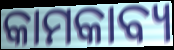
କାମକାବ୍ୟ